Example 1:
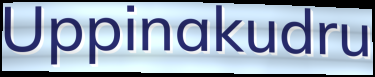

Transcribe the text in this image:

Uppinakudru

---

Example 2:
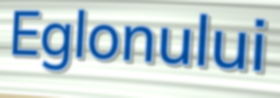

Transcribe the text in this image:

Eglonului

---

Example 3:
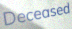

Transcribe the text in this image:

Deceased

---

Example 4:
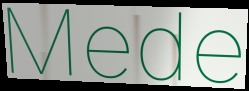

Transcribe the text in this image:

Mede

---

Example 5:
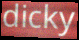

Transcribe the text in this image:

dicky